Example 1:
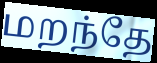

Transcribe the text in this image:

மறந்தே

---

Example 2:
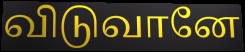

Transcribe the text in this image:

விடுவானே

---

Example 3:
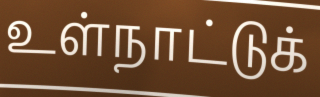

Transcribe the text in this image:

உள்நாட்டுக்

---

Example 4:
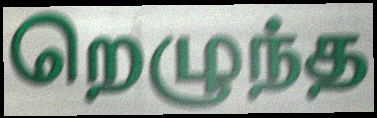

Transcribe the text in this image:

றெழுந்த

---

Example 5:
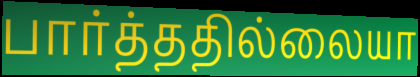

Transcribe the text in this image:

பார்த்ததில்லையா